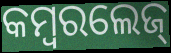
କମ୍ବରଲେଜ୍